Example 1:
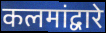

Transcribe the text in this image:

कलमांद्वारे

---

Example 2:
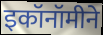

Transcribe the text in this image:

इकॉनॉमीने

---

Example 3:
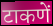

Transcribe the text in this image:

टाकणें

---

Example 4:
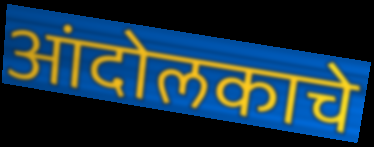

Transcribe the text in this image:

आंदोलकाचे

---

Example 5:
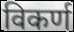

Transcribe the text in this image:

विकर्ण